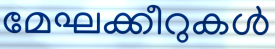
മേഘക്കീറുകൾ